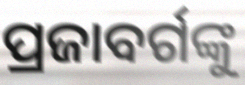
ପ୍ରଜାବର୍ଗଙ୍କୁ